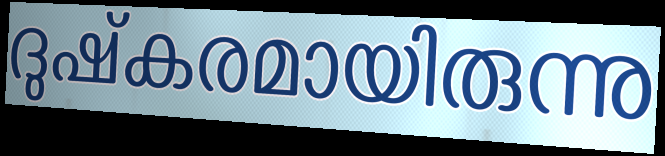
ദുഷ്‌കരമായിരുന്നു